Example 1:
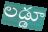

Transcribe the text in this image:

లడ్డూ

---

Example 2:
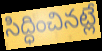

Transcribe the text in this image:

సిద్ధించినట్లే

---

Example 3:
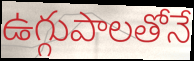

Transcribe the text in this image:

ఉగ్గుపాలతోనే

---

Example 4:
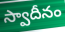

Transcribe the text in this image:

స్వాదీనం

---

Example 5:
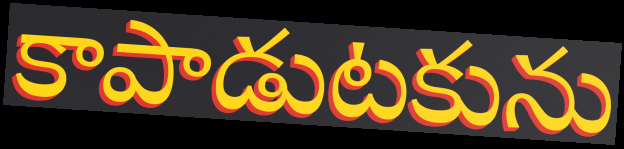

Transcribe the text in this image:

కాపాడుటకును